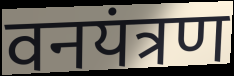
वनयंत्रण